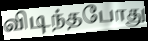
விடிந்தபோது